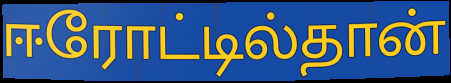
ஈரோட்டில்தான்